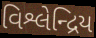
વિશ્લેન્દ્રિય